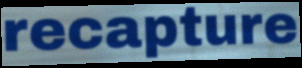
recapture